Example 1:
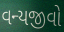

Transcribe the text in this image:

વન્યજીવો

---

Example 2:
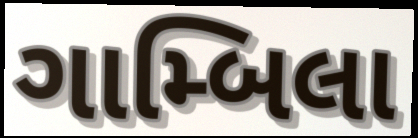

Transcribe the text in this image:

ગામ્બિલા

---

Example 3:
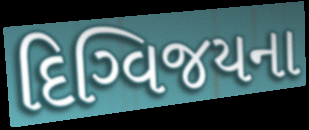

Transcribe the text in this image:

દિગ્વિજયના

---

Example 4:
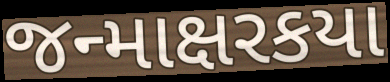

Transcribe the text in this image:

જન્માક્ષરકયા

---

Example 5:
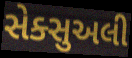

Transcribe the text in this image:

સેક્સુઅલી